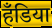
हँडिया